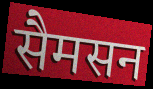
सैमसन